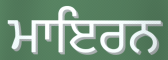
ਮਾਇਰਨ